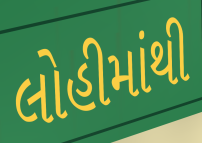
લોહીમાંથી